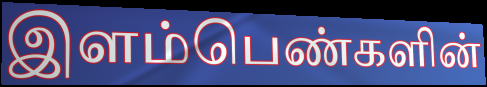
இளம்பெண்களின்